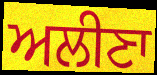
ਅਲੀਣਾ